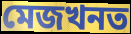
মেজখনত